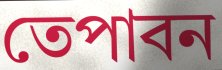
তেপাবন